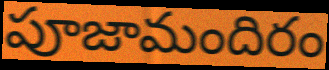
పూజామందిరం